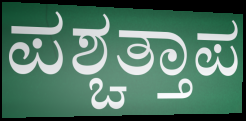
ಪಶ್ಚತ್ತಾಪ